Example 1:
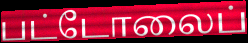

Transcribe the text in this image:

பட்டோலைப்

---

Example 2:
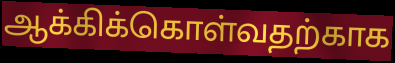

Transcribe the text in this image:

ஆக்கிக்கொள்வதற்காக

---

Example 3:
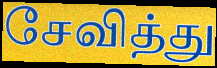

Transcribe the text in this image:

சேவித்து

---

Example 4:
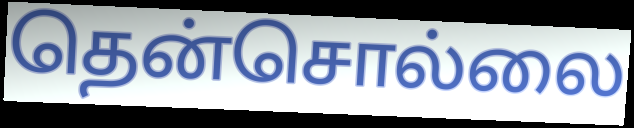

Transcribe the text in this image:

தென்சொல்லை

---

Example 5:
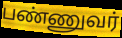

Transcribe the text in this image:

பண்ணுவர்